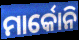
ମାର୍କୋନି